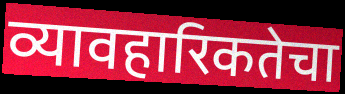
व्यावहारिकतेचा